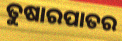
ତୁଷାରପାତର